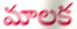
మాలక